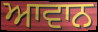
ਆਵਾਨ